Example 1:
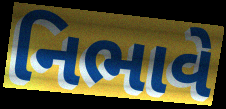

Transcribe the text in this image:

નિભાવે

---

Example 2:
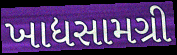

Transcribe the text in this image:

ખાદ્યસામગ્રી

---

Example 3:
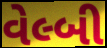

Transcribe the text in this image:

વેલ્બી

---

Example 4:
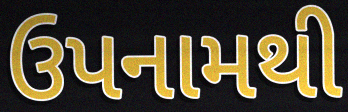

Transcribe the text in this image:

ઉપનામથી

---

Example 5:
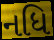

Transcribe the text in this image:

નધિ